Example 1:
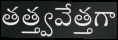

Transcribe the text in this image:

తత్త్వవేత్తగా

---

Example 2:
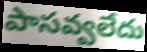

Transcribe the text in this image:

పాసవ్వలేదు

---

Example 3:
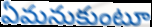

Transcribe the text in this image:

ఏమనుకుంటూ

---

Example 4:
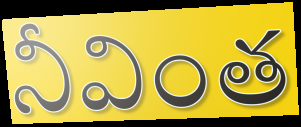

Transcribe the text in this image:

నీవింత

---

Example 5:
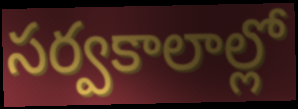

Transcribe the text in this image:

సర్వకాలాల్లో